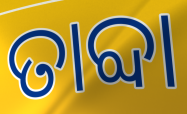
ତାବ୍ଦା